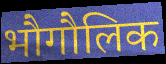
भौगौलिक